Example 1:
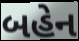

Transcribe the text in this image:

બહેન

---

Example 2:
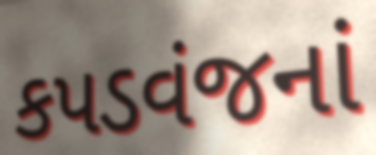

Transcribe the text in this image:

કપડવંજનાં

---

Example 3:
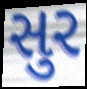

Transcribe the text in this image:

સુર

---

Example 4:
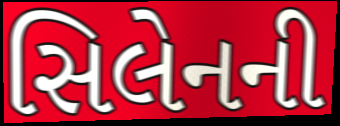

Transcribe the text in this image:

સિલેનની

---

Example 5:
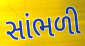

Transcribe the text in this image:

સાંભળી